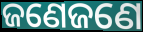
ଜଣେଜଣେ